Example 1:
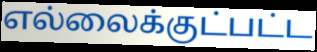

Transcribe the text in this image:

எல்லைக்குட்பட்ட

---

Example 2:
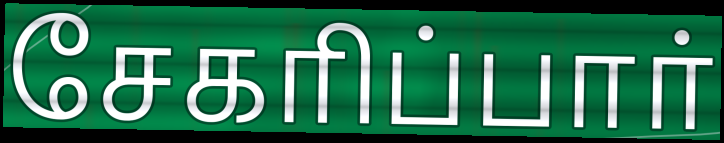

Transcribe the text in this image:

சேகரிப்பார்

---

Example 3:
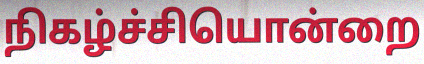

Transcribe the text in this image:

நிகழ்ச்சியொன்றை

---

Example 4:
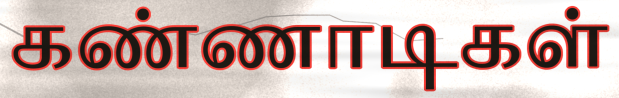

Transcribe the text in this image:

கண்ணாடிகள்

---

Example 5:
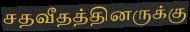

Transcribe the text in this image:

சதவீதத்தினருக்கு